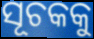
ସୂଚକକୁ